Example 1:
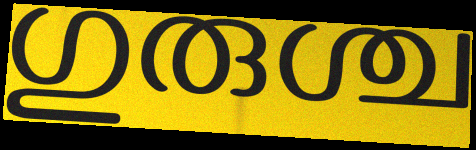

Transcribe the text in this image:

ഗുരുശ്ച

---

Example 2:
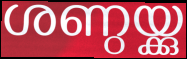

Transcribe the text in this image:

ശണ്ഠയ്ക്കു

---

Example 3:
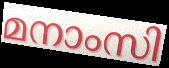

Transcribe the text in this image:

മനാംസി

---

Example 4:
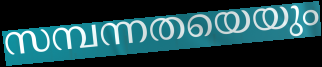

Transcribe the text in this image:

സമ്പന്നതയെയും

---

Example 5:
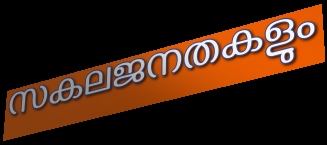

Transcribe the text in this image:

സകലജനതകളും